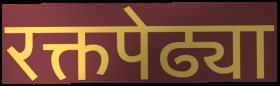
रक्तपेढ्या